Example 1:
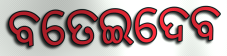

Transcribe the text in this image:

ବତେଇଦେବ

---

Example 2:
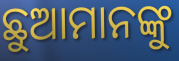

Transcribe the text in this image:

ଛୁଆମାନଙ୍କୁ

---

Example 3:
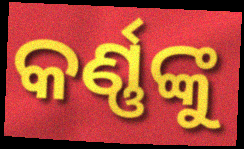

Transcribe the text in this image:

କର୍ଣ୍ଣଙ୍କୁ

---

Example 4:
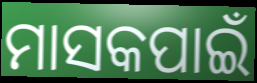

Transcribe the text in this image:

ମାସକପାଇଁ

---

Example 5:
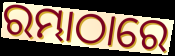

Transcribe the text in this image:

ରମ୍ଭାଠାରେ